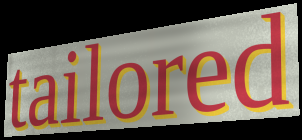
tailored